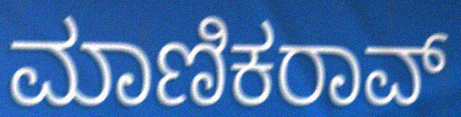
ಮಾಣಿಕರಾವ್